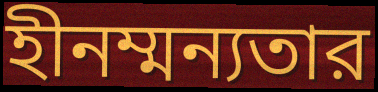
হীনম্মন্যতার